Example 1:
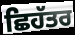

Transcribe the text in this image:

ਛਿਹੱਤਰ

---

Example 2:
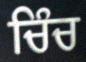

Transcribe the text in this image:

ਚਿੰਚ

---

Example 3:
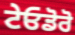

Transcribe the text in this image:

ਟੇਓਡੋਰੋ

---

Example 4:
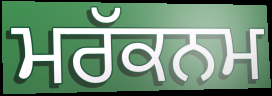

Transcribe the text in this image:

ਮਰੱਕਨਮ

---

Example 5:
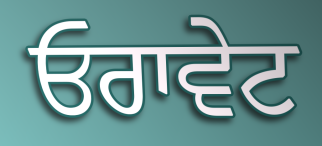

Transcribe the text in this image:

ਓਰਾਵੇਟ